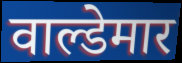
वाल्डेमार